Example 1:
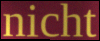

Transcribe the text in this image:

nicht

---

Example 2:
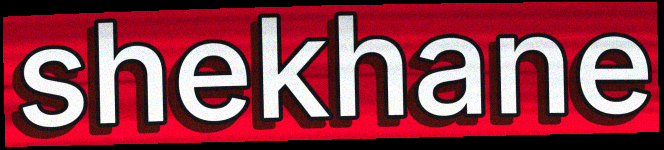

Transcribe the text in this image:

shekhane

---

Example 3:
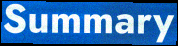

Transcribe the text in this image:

Summary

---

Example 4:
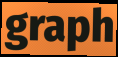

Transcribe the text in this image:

graph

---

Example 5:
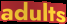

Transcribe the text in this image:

adults